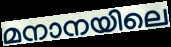
മനാനയിലെ